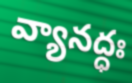
వ్యానద్ధః